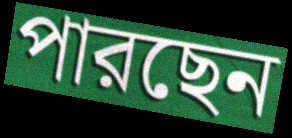
পারছেন